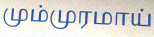
மும்முரமாய்